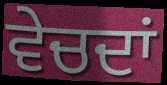
ਵੇਚਦਾਂ